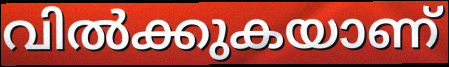
വിൽക്കുകയാണ്